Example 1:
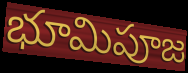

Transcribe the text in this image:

భూమిపూజ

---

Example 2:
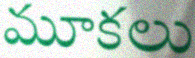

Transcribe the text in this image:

మూకలు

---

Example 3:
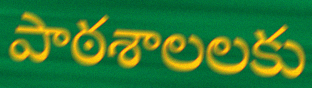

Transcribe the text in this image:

పాఠశాలలకు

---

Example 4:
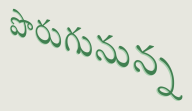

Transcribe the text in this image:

పొరుగునున్న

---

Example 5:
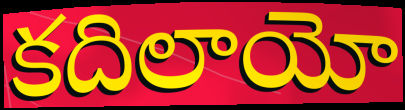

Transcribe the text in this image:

కదిలాయో